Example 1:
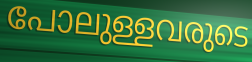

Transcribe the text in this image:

പോലുള്ളവരുടെ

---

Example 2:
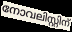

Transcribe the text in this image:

നോവലിസ്റ്റിന്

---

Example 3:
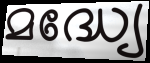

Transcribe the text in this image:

മദ്ധ്യേ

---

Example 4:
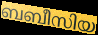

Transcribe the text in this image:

ബബീസിയ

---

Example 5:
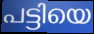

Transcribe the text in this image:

പട്ടിയെ